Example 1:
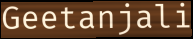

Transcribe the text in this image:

Geetanjali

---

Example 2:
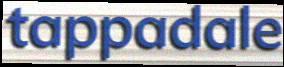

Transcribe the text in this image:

tappadale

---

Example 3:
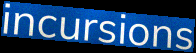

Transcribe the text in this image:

incursions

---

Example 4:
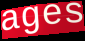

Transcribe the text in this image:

ages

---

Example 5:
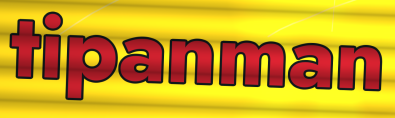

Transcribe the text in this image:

tipanman